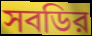
সবডির